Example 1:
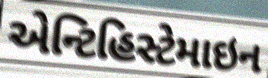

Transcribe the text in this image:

એન્ટિહિસ્ટેમાઇન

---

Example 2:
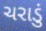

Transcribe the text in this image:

ચરાડું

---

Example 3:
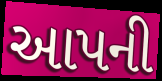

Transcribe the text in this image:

આપની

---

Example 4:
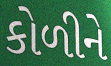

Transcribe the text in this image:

કોળીને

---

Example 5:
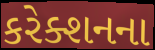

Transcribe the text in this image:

કરેક્શનના